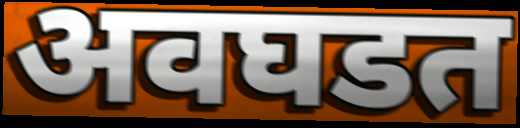
अवघडत